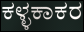
ಕಳ್ಳಕಾಕರ